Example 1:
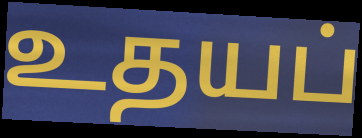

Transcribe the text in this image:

உதயப்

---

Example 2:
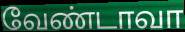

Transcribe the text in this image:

வேண்டாவா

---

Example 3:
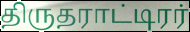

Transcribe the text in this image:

திருதராட்டிரர்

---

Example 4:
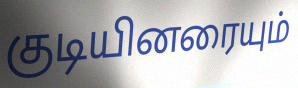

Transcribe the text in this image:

குடியினரையும்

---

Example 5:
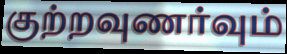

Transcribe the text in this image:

குற்றவுணர்வும்